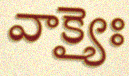
వాక్యైః